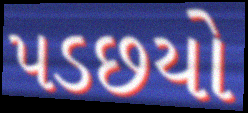
પડછયો